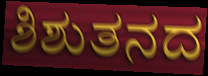
ಶಿಶುತನದ